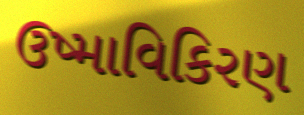
ઉષ્માવિકિરણ